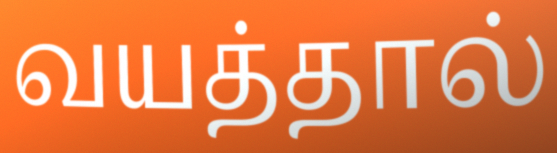
வயத்தால்